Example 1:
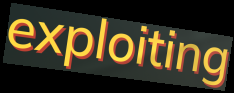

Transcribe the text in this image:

exploiting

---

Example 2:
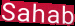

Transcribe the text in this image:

Sahab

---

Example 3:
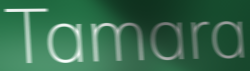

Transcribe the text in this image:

Tamara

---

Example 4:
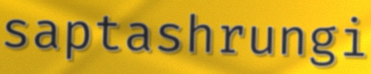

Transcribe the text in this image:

saptashrungi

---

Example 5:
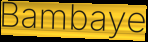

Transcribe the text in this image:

Bambaye